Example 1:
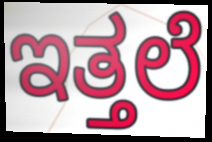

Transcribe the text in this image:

ಇತ್ತಲೆ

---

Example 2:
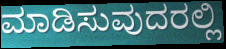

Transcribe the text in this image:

ಮಾಡಿಸುವುದರಲ್ಲಿ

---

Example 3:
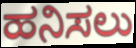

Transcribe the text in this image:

ಹನಿಸಲು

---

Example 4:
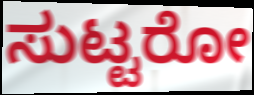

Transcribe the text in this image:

ಸುಟ್ಟರೋ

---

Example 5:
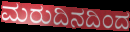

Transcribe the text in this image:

ಮರುದಿನದಿಂದ